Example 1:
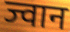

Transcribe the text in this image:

ज्वान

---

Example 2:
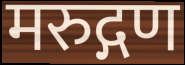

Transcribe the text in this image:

मरुद्गण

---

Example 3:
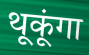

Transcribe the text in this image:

थूकूंगा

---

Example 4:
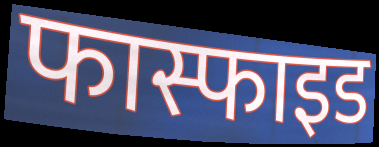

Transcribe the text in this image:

फास्फाइड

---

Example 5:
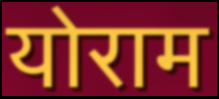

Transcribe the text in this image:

योराम